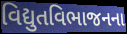
વિદ્યુતવિભાજનના